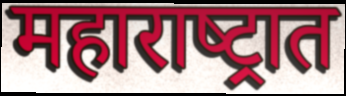
महाराष्‍ट्रात